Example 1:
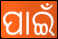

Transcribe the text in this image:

ପାଇଁ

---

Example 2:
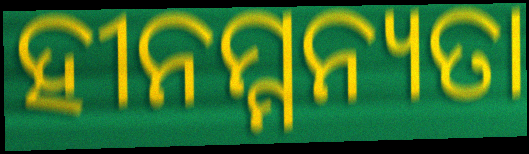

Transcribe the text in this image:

ହୀନମ୍ମନ୍ୟତା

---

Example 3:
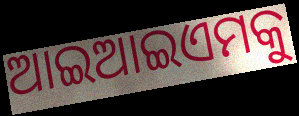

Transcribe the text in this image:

ଆଇଆଇଏମକୁ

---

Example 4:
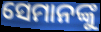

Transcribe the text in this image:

ସେମାନଙ୍କୁ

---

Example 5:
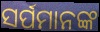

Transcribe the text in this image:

ସର୍ପମାନଙ୍କ